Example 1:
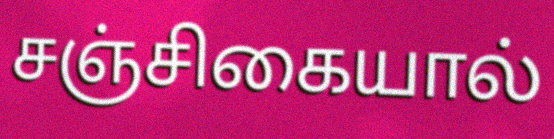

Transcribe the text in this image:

சஞ்சிகையால்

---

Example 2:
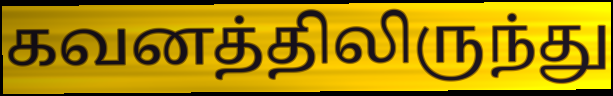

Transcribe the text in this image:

கவனத்திலிருந்து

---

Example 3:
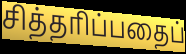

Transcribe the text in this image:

சித்தரிப்பதைப்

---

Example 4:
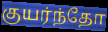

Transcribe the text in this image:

குயர்ந்தோ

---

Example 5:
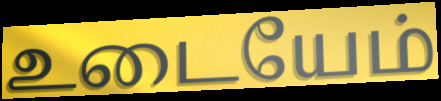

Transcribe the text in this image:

உடையேம்